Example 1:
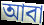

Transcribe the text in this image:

আবা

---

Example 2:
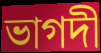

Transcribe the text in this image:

ভাগদী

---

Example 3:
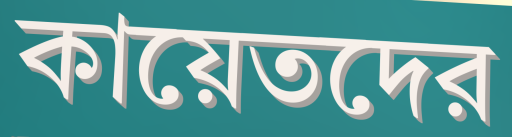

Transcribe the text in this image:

কায়েতদের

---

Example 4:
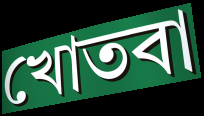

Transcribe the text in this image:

খোতবা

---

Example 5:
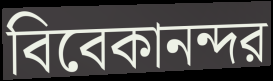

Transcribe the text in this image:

বিবেকানন্দর